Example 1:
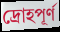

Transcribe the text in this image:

দ্রোহপূর্ণ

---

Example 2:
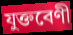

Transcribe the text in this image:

যুক্তবেণী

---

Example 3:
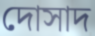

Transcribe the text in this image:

দোসাদ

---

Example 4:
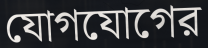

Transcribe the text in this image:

যোগযোগের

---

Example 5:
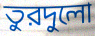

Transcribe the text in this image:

তুরদুলো